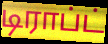
டிராப்ட்